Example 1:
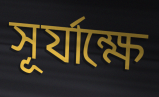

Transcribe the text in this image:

সূর্যাক্ষে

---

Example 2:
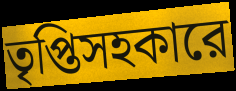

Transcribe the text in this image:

তৃপ্তিসহকারে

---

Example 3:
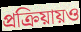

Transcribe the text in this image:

প্রক্রিয়ায়ও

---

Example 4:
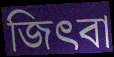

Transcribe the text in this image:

জিৎবা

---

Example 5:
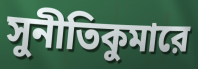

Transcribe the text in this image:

সুনীতিকুমারে